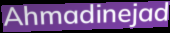
Ahmadinejad